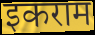
इकराम